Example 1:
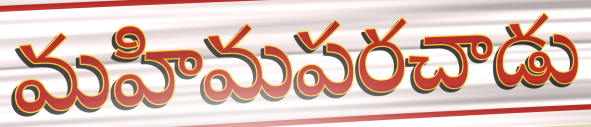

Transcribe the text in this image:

మహిమపరచాడు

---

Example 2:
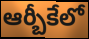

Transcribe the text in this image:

ఆర్బీకేలో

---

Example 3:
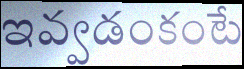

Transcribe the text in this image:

ఇవ్వడంకంటే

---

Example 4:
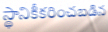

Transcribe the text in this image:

స్థానికీకరించబడిన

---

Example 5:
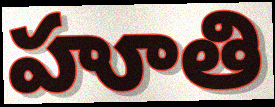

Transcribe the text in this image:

హూతి